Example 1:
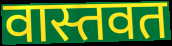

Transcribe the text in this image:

वास्‍तवत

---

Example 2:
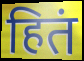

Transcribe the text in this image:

हितं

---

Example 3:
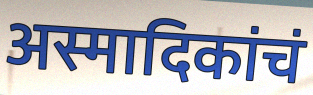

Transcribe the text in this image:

अस्मादिकांचं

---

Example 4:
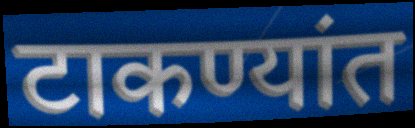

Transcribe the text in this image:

टाकण्यांत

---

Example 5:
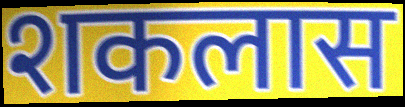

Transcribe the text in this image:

शकलास